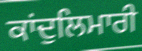
ਕਾਂਦੁਲਿਮਾਰੀ